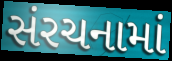
સંરચનામાં